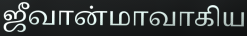
ஜீவான்மாவாகிய